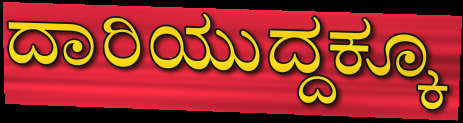
ದಾರಿಯುದ್ದಕ್ಕೂ